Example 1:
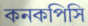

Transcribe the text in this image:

কনকপিসি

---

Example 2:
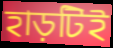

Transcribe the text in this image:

হাড়টিই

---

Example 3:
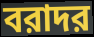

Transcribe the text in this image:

বরাদর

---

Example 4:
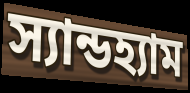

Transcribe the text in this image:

স্যান্ডহ্যাম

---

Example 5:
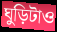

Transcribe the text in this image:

ঘুড়িটাও